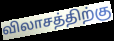
விலாசத்திற்கு